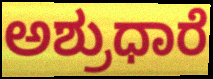
ಅಶ್ರುಧಾರೆ